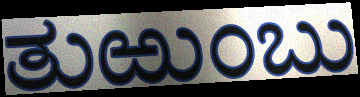
ತುಱುಂಬು